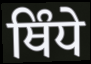
ਥਿੰਧੇ